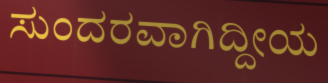
ಸುಂದರವಾಗಿದ್ದೀಯ